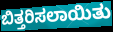
ಬಿತ್ತರಿಸಲಾಯಿತು